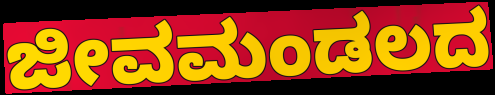
ಜೀವಮಂಡಲದ